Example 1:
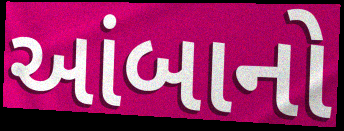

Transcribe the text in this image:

આંબાનો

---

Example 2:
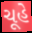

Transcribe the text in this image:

ચૂહે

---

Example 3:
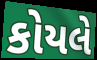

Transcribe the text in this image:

કોયલે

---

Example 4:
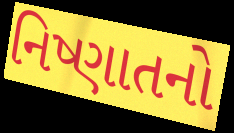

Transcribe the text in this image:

નિષ્ણાતનો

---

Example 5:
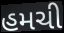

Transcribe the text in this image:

હમચી